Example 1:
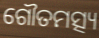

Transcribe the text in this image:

ଗୌତମତ୍ସ୍ୟ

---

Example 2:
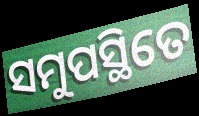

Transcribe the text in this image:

ସମୁପସ୍ଥିତେ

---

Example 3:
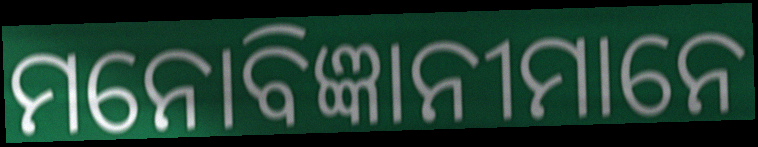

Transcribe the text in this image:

ମନୋବିଜ୍ଞାନୀମାନେ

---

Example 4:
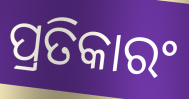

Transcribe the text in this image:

ପ୍ରତିକାରଂ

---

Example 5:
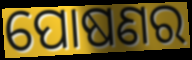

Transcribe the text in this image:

ପୋଷଣର